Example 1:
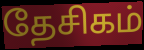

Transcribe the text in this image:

தேசிகம்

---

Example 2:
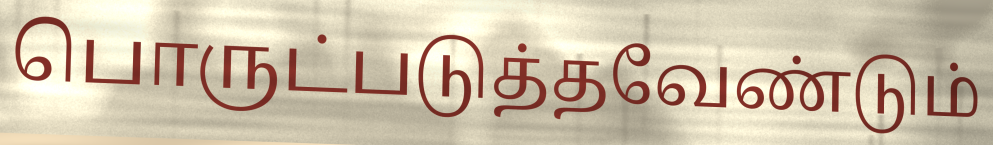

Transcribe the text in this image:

பொருட்படுத்தவேண்டும்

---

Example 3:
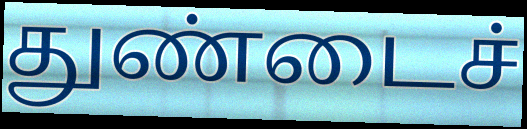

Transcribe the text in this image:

துண்டைச்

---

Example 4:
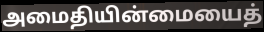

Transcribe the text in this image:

அமைதியின்மையைத்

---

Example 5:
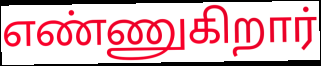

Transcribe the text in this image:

எண்ணுகிறார்